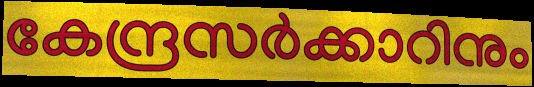
കേന്ദ്രസർക്കാറിനും